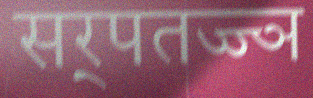
सर्पतज्ज्ञ